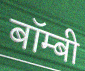
बॉम्बी